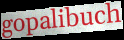
gopalibuch